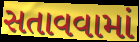
સતાવવામાં